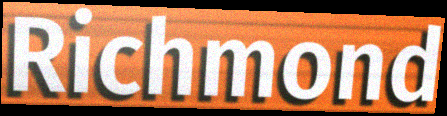
Richmond